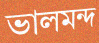
ভালমন্দ